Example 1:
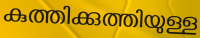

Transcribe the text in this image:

കുത്തിക്കുത്തിയുള്ള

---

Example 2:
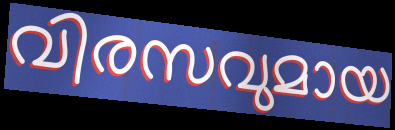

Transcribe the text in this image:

വിരസവുമായ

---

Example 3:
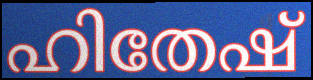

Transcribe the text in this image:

ഹിതേഷ്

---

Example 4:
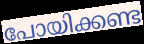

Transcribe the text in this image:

പോയിക്കണ്ട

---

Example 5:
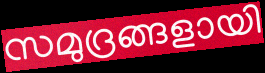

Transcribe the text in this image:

സമുദ്രങ്ങളായി